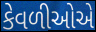
કેવળીઓએ